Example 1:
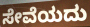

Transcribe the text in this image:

ಸೇವೆಯದು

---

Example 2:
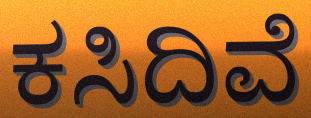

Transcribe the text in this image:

ಕಸಿದಿವೆ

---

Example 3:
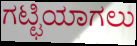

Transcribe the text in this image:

ಗಟ್ಟಿಯಾಗಲು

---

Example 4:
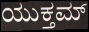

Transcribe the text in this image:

ಯುಕ್ತಮ್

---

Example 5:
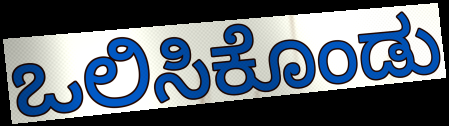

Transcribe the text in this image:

ಒಲಿಸಿಕೊಂಡು